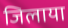
जिलाया